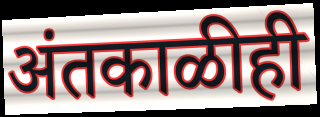
अंतकाळीही